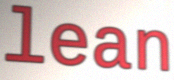
lean